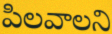
పిలవాలని